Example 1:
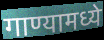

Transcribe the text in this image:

गाण्यामध्ये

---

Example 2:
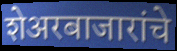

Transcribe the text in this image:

शेअरबाजारांचे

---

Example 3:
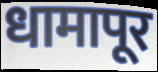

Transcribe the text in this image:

धामापूर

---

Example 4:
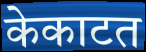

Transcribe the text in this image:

केकाटत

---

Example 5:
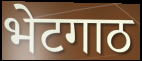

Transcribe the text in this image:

भेटगाठ